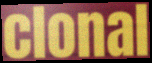
clonal